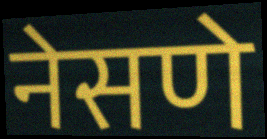
नेसणे